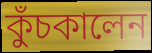
কুঁচকালেন